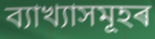
ব্যাখ্যাসমূহৰ